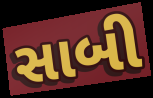
સાબી